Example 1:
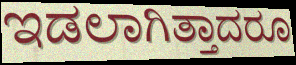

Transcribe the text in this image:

ಇಡಲಾಗಿತ್ತಾದರೂ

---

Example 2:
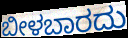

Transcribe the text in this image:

ಬೀಳಬಾರದು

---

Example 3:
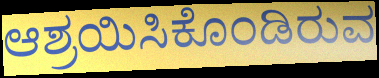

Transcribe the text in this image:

ಆಶ್ರಯಿಸಿಕೊಂಡಿರುವ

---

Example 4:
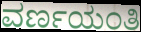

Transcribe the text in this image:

ವರ್ಣಯಂತಿ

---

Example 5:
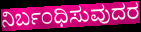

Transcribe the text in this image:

ನಿರ್ಬಂಧಿಸುವುದರ